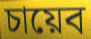
চায়েব